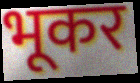
भूकर